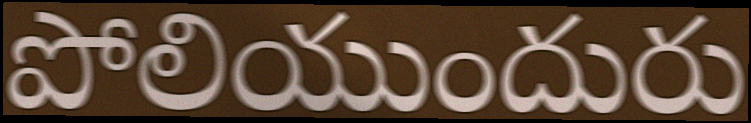
పోలియుందురు